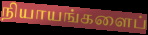
நியாயங்களைப்